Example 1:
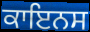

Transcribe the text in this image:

ਕਾਇਨਸ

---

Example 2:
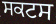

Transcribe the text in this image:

ਸਕਟਸ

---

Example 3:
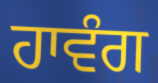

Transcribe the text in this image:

ਹਾਵੰਗ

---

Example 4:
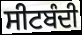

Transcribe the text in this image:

ਸੀਟਬੰਦੀ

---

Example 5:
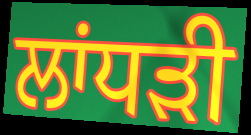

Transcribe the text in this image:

ਲਾਂਧੜੀ